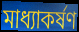
মাধ্যাকৰ্ষণ